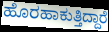
ಹೊರಹಾಕುತ್ತಿದ್ದಾರೆ